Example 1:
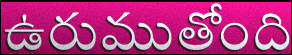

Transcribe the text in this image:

ఉరుముతోంది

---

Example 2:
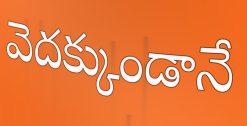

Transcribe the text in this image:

వెదక్కుండానే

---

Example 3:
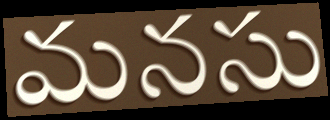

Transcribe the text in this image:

మనసు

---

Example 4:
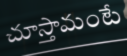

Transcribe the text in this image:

చూస్తామంటే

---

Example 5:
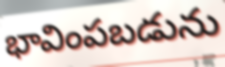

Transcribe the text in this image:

భావింపబడును